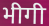
भीगी